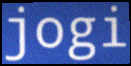
jogi